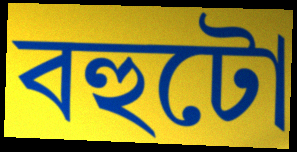
বহুটো